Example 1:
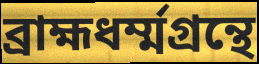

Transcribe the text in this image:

ব্রাহ্মধর্ম্মগ্রন্থে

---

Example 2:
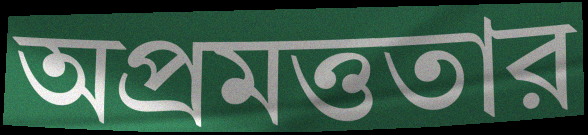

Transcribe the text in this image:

অপ্রমত্ততার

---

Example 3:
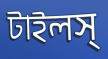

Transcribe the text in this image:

টাইলস্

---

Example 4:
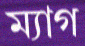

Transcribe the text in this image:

ম্যাগ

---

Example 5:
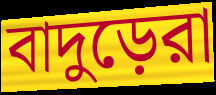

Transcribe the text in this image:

বাদুড়েরা